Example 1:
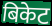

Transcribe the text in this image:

बिकेट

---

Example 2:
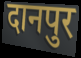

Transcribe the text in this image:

दानपुर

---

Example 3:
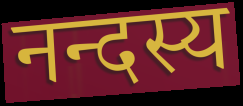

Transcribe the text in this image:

नन्दस्य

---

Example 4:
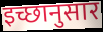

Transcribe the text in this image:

इच्‍छानुसार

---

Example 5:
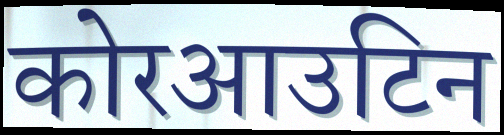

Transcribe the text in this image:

कोरआउटिन